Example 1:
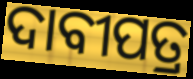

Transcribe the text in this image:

ଦାବୀପତ୍ର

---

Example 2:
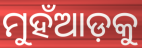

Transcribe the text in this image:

ମୁହଁଆଡ଼କୁ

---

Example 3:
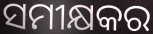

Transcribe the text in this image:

ସମୀକ୍ଷକର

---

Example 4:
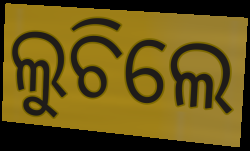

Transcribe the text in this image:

ଲୁଚିଲେ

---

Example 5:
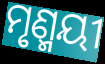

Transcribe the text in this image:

ମୃଣ୍ମୟୀ